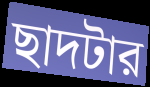
ছাদটার